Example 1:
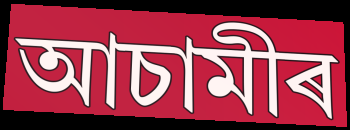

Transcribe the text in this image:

আচামীৰ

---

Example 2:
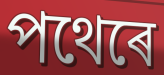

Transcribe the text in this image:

পথেৰে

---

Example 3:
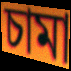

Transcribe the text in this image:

চামা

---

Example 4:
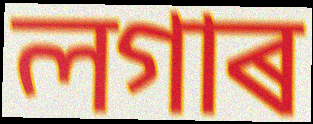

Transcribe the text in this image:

লগাৰ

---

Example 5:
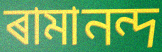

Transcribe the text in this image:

ৰামানন্দ